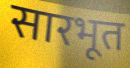
सारभूत